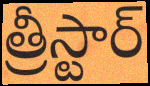
త్రీస్టార్